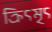
ক্রিৎমৃৎ